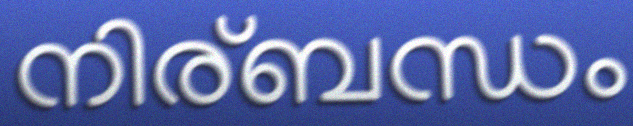
നിര്ബന്ധം